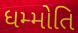
ધમ્મોતિ